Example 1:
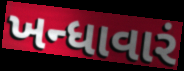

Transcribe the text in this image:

ખન્ધાવારં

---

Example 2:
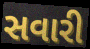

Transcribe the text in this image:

સવારી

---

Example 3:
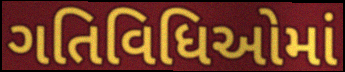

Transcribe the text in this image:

ગતિવિધિઓમાં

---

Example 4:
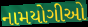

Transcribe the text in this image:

નામયોગીઓ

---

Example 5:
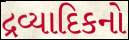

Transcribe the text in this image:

દ્રવ્યાદિકનો